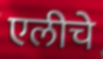
एलीचे